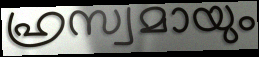
ഹ്രസ്വമായും